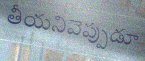
తీయనివెప్పుడూ